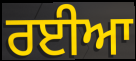
ਰਈਆ